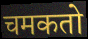
चमकतो